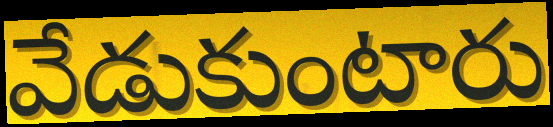
వేడుకుంటారు